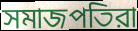
সমাজপতিরা